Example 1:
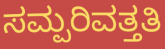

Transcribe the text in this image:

ಸಮ್ಪರಿವತ್ತತಿ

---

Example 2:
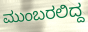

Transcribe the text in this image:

ಮುಂಬರಲಿದ್ದ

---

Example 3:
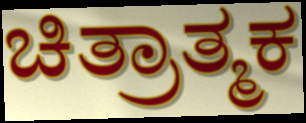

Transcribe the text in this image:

ಚಿತ್ರಾತ್ಮಕ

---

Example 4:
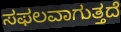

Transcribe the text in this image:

ಸಫಲವಾಗುತ್ತದೆ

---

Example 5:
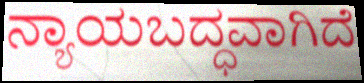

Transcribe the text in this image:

ನ್ಯಾಯಬದ್ಧವಾಗಿದೆ